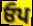
ਓਪ